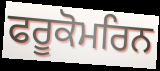
ਫਰੂਕੋਮਰਿਨ